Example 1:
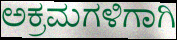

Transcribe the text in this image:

ಅಕ್ರಮಗಳಿಗಾಗಿ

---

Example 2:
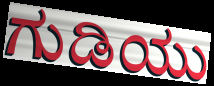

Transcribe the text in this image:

ಗುಡಿಯು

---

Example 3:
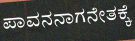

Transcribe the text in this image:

ಪಾವನನಾಗನೇತಕ್ಕೆ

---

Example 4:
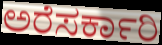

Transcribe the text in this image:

ಅರೆಸರ್ಕಾರಿ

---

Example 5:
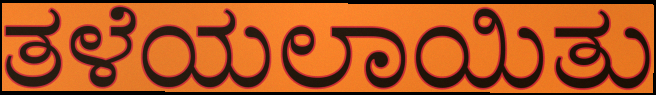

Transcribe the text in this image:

ತಳೆಯಲಾಯಿತು